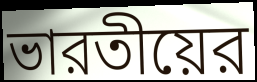
ভারতীয়ের